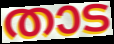
താട